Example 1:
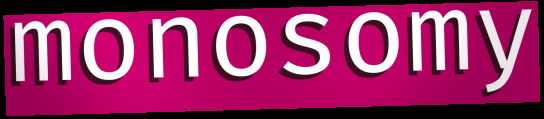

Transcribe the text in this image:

monosomy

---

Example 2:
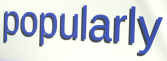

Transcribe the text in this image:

popularly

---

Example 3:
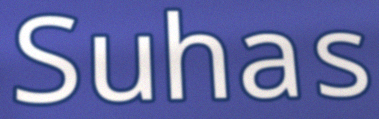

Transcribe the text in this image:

Suhas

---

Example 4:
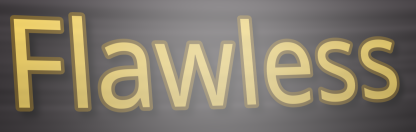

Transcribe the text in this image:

Flawless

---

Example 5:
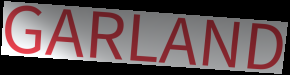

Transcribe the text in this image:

GARLAND